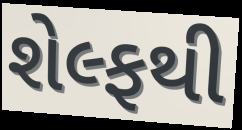
શેલ્ફથી